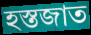
হস্তজাত